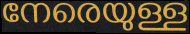
നേരെയുള്ള